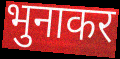
भुनाकर